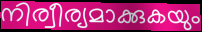
നിര്വീര്യമാക്കുകയും